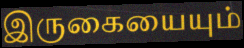
இருகையையும்